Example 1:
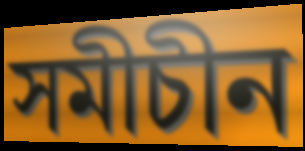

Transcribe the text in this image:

সমীচীন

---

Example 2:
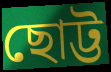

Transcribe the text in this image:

ছোট্ট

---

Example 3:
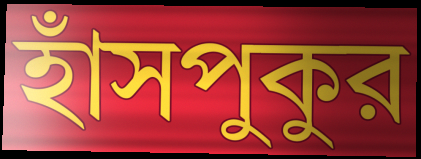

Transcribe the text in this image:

হাঁসপুকুর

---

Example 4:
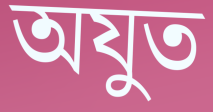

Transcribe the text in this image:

অযুত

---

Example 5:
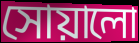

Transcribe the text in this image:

সোয়ালো